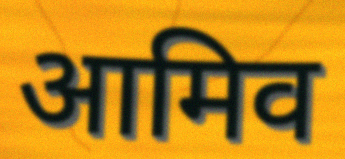
आमिव